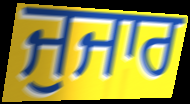
ਜੁਜਾਰ